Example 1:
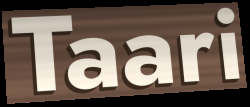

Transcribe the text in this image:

Taari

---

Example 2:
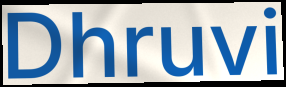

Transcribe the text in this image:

Dhruvi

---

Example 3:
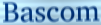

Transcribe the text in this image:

Bascom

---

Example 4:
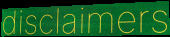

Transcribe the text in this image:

disclaimers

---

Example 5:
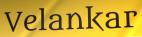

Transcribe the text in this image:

Velankar